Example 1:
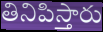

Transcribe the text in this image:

తినిపిస్తారు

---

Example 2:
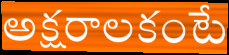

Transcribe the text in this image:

అక్షరాలకంటే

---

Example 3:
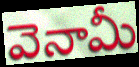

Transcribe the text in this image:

వెనామీ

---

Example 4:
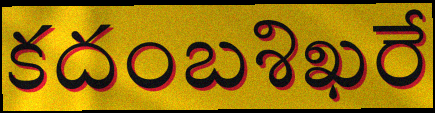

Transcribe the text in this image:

కదంబశిఖరే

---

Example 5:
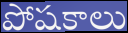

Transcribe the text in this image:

పోషకాలు